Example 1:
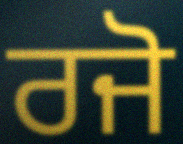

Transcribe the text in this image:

ਰਜੋ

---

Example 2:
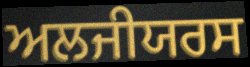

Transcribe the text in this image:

ਅਲਜੀਯਰਸ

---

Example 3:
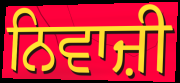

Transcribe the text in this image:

ਨਿਵਾਜ਼ੀ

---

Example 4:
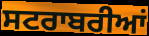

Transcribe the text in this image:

ਸਟਰਾਬਰੀਆਂ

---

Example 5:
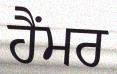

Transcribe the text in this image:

ਹੈਂਮਰ